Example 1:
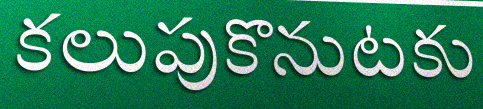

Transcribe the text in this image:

కలుపుకొనుటకు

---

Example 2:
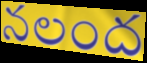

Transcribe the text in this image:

నలంద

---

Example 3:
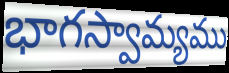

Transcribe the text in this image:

భాగస్వామ్యము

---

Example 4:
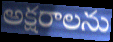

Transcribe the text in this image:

అక్షరాలను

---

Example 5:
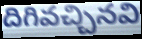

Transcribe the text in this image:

దిగివచ్చినవి